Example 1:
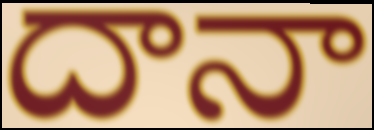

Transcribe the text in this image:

దానా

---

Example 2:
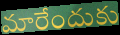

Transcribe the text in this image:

మారేందుకు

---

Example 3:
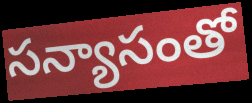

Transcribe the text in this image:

సన్యాసంతో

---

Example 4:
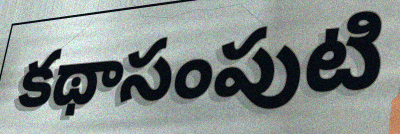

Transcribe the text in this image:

కథాసంపుటి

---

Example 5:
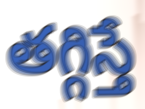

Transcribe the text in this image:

తగ్గిస్తే